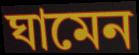
ঘামেন